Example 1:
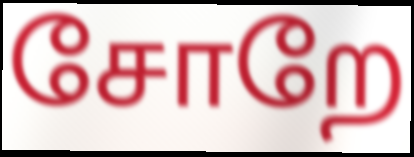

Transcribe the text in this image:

சோறே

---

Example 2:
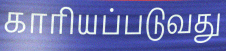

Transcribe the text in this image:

காரியப்படுவது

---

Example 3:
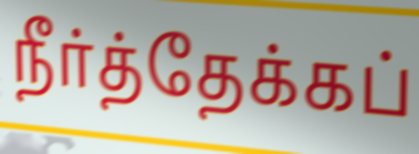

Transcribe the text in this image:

நீர்த்தேக்கப்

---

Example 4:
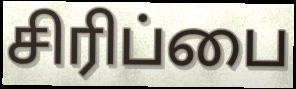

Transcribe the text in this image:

சிரிப்பை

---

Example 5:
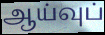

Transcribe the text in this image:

ஆய்வுப்